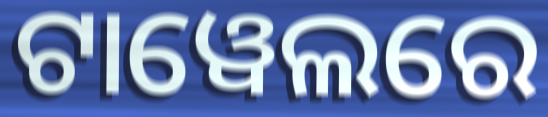
ଟାୱେଲରେ